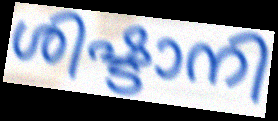
ശിഷ്ടാനി